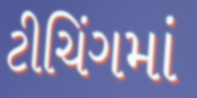
ટીચિંગમાં